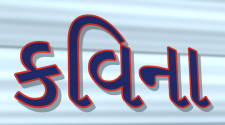
કવિના